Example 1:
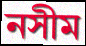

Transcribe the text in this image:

নসীম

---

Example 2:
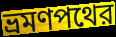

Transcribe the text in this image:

ভ্রমণপথের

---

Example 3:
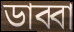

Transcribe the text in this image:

ডাব্বা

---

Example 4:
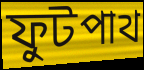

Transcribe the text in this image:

ফুটপাথ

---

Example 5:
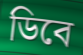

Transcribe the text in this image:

ডিবে